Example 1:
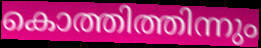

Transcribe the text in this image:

കൊത്തിത്തിന്നും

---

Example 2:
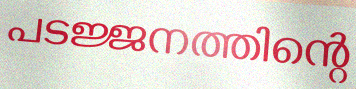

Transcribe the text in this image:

പടജ്ജനത്തിന്റെ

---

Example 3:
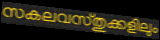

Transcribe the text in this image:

സകലവസ്തുക്കളിലും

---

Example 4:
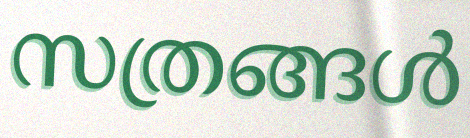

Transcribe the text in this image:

സത്രങ്ങൾ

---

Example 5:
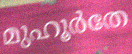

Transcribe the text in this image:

മുഹൂർതേ